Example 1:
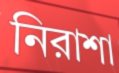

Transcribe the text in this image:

নিরাশা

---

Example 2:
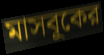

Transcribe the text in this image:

মাসবূকের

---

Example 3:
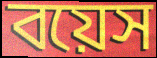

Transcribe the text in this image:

বয়েস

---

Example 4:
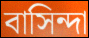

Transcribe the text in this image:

বাসিন্দা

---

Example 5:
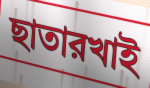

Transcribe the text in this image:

ছাতারখাই